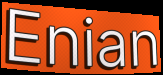
Enian